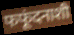
फफूंदनाशी